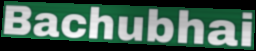
Bachubhai